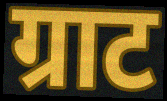
ग्राट